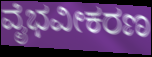
ವೈಭವೀಕರಣ